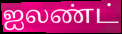
ஐலண்ட்